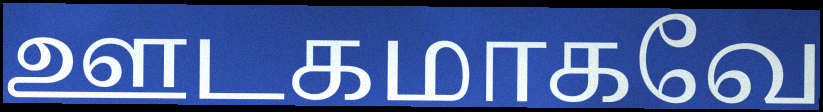
ஊடகமாகவே